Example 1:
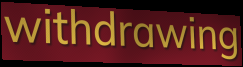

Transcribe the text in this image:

withdrawing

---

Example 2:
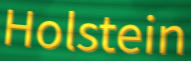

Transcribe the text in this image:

Holstein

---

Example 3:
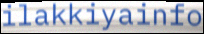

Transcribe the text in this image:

ilakkiyainfo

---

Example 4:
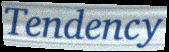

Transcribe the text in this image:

Tendency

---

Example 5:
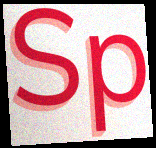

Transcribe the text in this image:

Sp